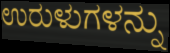
ಉರುಳುಗಳನ್ನು